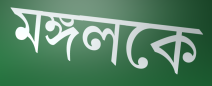
মঙ্গলকে